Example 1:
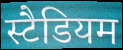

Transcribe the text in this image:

स्टैडियम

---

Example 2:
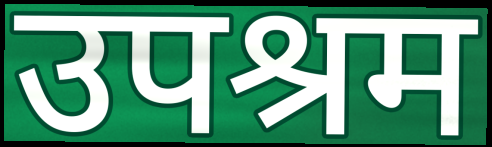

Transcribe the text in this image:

उपश्रम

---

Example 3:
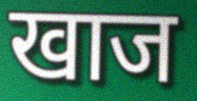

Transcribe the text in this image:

खाज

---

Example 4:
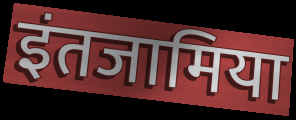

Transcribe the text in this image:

इंतजामिया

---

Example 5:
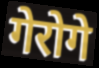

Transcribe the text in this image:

गेरोगे